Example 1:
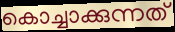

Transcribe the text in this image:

കൊച്ചാക്കുന്നത്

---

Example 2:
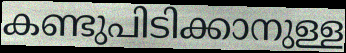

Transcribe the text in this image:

കണ്ടുപിടിക്കാനുള്ള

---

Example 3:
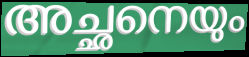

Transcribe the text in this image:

അച്ഛനെയും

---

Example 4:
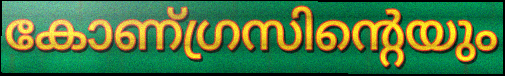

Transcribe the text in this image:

കോണ്ഗ്രസിന്റെയും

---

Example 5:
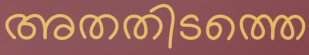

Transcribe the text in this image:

അതതിടത്തെ